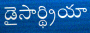
డైసార్థ్రియా